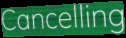
Cancelling